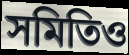
সমিতিও